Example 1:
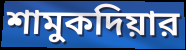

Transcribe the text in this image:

শামুকদিয়ার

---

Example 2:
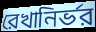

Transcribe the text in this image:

রেখানির্ভর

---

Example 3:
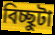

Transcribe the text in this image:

বিচ্ছুটা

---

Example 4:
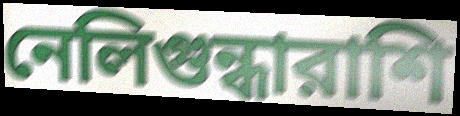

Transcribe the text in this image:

নেলিগুন্ধারাশি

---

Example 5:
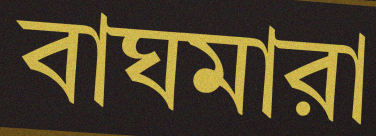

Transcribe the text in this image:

বাঘমারা